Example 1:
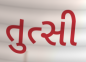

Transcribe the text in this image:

તુત્સી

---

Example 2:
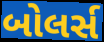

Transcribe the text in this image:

બોલર્સ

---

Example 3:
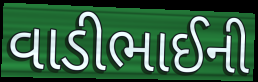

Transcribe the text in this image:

વાડીભાઈની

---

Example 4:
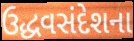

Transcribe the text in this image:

ઉદ્ધવસંદેશના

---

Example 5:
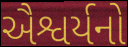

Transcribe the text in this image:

ઐશ્વર્યનો